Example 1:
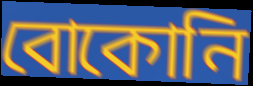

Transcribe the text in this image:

বোকোনি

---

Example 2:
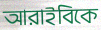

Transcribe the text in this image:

আরাইবিকে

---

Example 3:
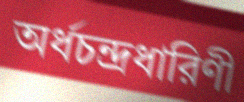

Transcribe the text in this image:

অর্ধচন্দ্রধারিণী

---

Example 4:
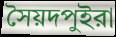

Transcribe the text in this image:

সৈয়দপুইরা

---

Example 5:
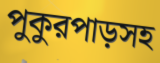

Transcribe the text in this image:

পুকুরপাড়সহ